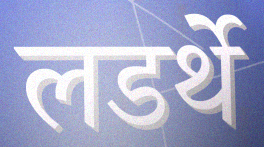
लडर्थे